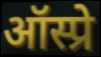
ऑस्प्रे